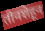
तीनशेहून